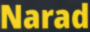
Narad